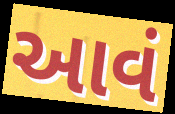
આવં